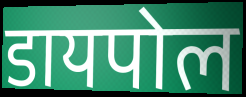
डायपोल